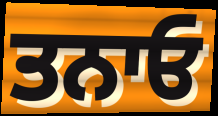
ਤਨਾਓ